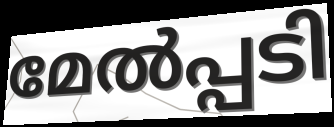
മേൽപ്പടി